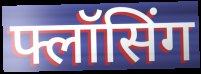
फ्लॉसिंग